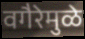
वगैरेमुळे